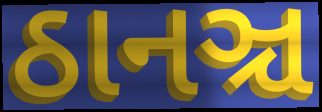
ઠાનઞ્ચ